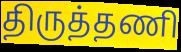
திருத்தணி